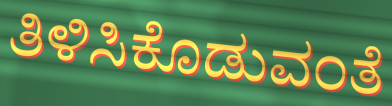
ತಿಳಿಸಿಕೊಡುವಂತೆ